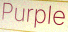
Purple